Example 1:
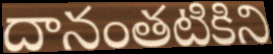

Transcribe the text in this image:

దానంతటికిని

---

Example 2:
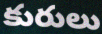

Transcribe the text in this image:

కురులు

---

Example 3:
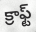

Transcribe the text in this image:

క్రాఫ్ట్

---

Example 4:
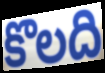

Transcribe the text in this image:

కొలది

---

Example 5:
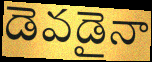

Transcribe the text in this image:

డెవడైనా